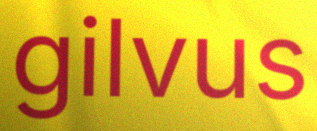
gilvus